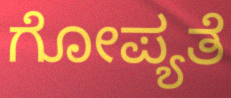
ಗೋಪ್ಯತೆ